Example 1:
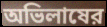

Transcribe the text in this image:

অভিলাষের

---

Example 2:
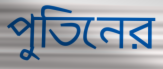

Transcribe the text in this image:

পুতিনের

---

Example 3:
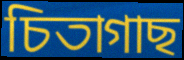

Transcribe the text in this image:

চিতাগাছ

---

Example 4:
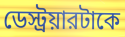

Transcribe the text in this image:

ডেস্ট্রয়ারটাকে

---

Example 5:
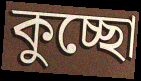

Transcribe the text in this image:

কুচ্ছো